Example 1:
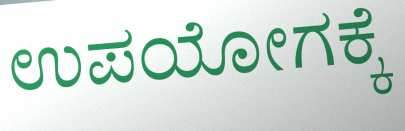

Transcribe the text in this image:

ಉಪಯೋಗಕ್ಕೆ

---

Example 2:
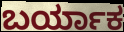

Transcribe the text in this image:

ಬರ್ಯಾಕ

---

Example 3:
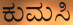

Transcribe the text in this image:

ಕುಮಸಿ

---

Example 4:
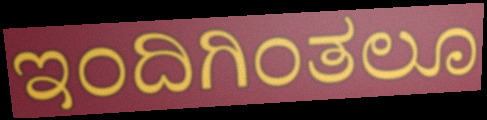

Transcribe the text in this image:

ಇಂದಿಗಿಂತಲೂ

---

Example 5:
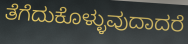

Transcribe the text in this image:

ತೆಗೆದುಕೊಳ್ಳುವುದಾದರೆ